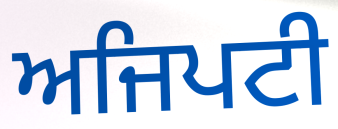
ਅਜਿਪਟੀ